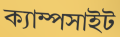
ক্যাম্পসাইট